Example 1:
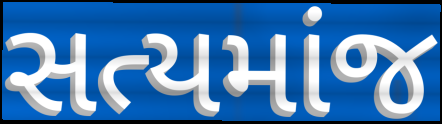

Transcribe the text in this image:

સત્યમાંજ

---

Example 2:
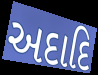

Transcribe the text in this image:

અદાદિ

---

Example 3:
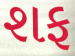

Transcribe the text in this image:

શફ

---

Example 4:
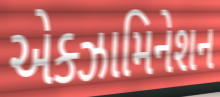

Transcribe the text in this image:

એક્ઝામિનેશન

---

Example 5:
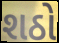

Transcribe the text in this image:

શઠો